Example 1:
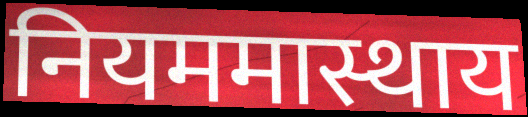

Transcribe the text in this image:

नियममास्थाय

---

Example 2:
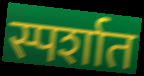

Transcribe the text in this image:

स्पर्शात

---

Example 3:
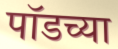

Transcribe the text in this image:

पॉडच्या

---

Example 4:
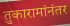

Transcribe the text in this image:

तुकारामांनंतर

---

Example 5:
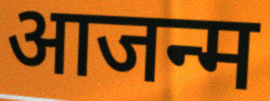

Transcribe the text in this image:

आजन्म